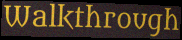
Walkthrough